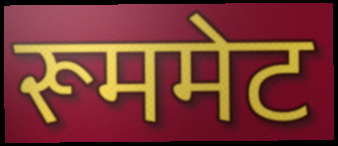
रूममेट